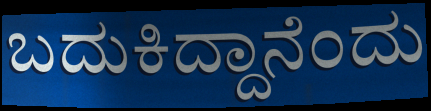
ಬದುಕಿದ್ದಾನೆಂದು